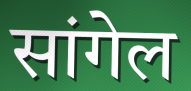
सांगेल